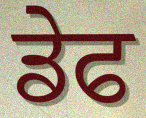
ਡੇਫ